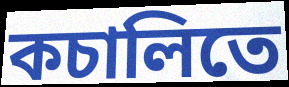
কচালিতে